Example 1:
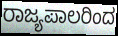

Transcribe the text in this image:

ರಾಜ್ಯಪಾಲರಿಂದ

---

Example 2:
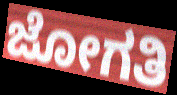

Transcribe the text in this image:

ಜೋಗತಿ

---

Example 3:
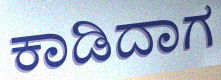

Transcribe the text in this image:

ಕಾಡಿದಾಗ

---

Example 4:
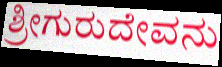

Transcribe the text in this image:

ಶ್ರೀಗುರುದೇವನು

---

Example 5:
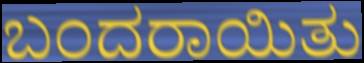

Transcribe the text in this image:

ಬಂದರಾಯಿತು